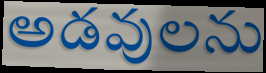
అడవులను